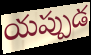
యప్పుడ